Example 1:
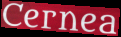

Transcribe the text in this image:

Cernea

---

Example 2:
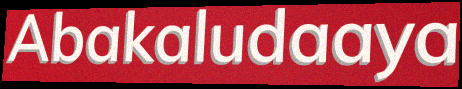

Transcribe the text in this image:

Abakaludaaya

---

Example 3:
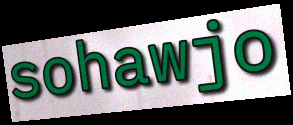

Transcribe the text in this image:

sohawjo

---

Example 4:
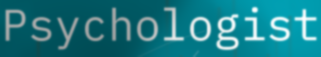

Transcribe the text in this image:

Psychologist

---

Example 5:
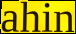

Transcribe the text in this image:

ahin